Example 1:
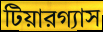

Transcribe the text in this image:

টিয়ারগ্যাস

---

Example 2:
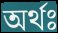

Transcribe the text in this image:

অর্থঃ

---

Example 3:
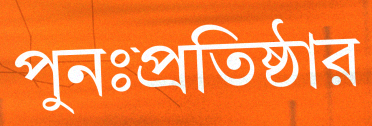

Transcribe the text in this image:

পুনঃপ্রতিষ্ঠার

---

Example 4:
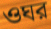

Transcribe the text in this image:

ওঘর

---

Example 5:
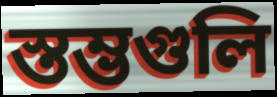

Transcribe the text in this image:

স্তম্ভগুলি